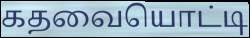
கதவையொட்டி